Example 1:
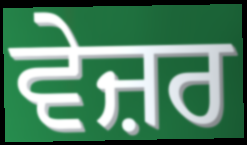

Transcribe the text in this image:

ਵੇਜ਼ਰ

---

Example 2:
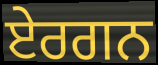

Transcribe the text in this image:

ਏਰਗਨ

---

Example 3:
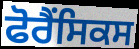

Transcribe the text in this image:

ਫੋਰੈਂਸਿਕਸ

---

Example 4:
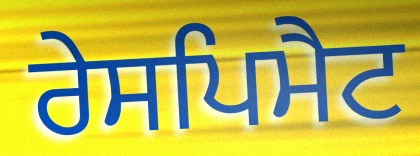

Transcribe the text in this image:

ਰੇਸਪਿਮੈਟ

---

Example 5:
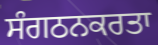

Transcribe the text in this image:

ਸੰਗਠਨਕਰਤਾ